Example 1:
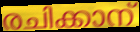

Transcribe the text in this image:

രചിക്കാന്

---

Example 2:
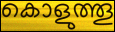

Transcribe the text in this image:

കൊളുത്തൂ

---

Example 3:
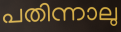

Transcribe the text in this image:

പതിന്നാലു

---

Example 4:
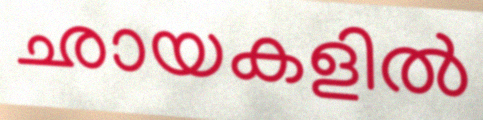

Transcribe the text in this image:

ഛായകളിൽ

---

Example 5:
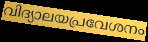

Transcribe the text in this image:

വിദ്യാലയപ്രവേശനം